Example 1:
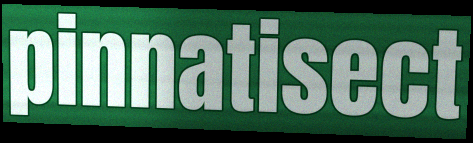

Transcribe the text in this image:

pinnatisect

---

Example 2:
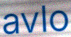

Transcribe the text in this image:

avlo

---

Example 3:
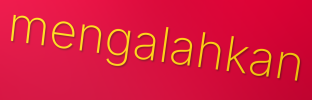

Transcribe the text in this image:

mengalahkan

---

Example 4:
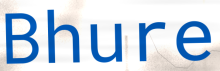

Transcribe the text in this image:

Bhure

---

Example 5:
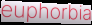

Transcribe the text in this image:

euphorbia